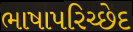
ભાષાપરિચ્છેદ